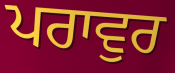
ਪਰਾਵੁਰ